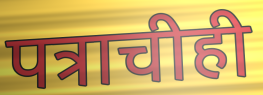
पत्राचीही